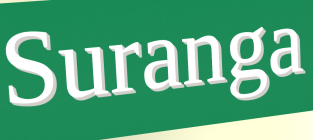
Suranga